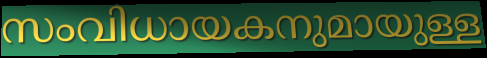
സംവിധായകനുമായുള്ള